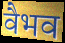
वैभव